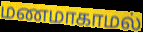
மணமாகாமல்